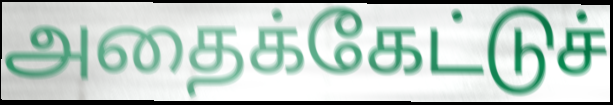
அதைக்கேட்டுச்